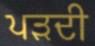
ਪੜਦੀ